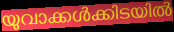
യുവാക്കൾക്കിടയിൽ